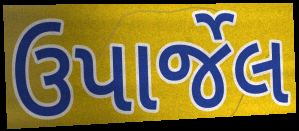
ઉપાર્જેલ